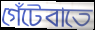
গেঁটেবাতে